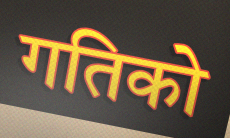
गतिको